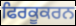
ਫਿਰਕੂਕਰਨ